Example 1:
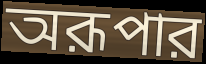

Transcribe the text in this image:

অরূপার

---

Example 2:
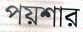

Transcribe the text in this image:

পয়শার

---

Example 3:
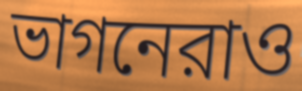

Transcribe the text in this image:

ভাগনেরাও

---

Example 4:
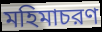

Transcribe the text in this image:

মহিমাচরণ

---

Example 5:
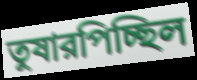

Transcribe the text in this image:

তুষারপিচ্ছিল